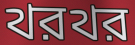
থরথর